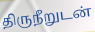
திருநீறுடன்